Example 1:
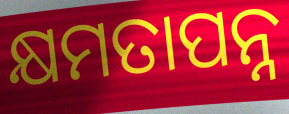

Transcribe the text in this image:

କ୍ଷମତାପନ୍ନ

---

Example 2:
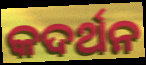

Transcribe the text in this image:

କଦର୍ଥନ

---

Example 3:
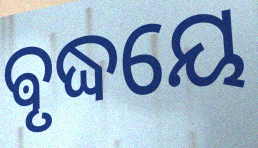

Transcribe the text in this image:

ଵୃଦ୍ଧୟେ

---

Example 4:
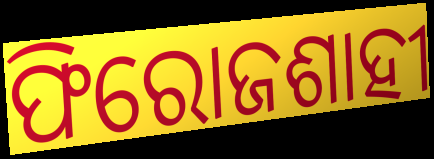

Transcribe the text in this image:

ଫିରୋଜଶାହୀ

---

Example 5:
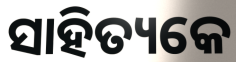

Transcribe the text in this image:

ସାହିତ୍ୟକେ